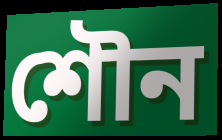
শৌন